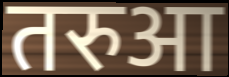
तरुआ